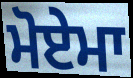
ਮੋਏਮਾ